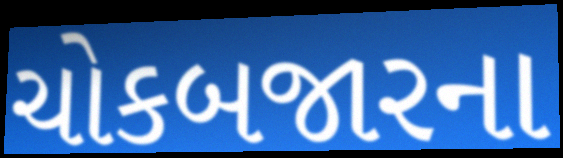
ચોકબજારના